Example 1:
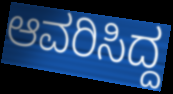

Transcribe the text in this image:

ಆವರಿಸಿದ್ದ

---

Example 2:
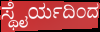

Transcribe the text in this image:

ಸ್ಥೈರ್ಯದಿಂದ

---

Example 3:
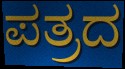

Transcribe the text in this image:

ಪತ್ರದ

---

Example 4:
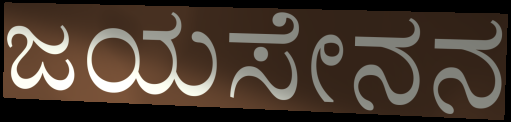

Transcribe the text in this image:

ಜಯಸೇನನ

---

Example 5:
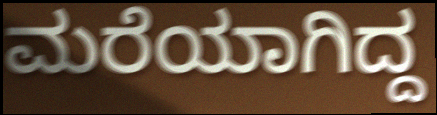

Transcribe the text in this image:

ಮರೆಯಾಗಿದ್ದ